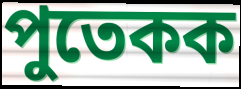
পুতেকক